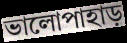
ভালোপাহাড়